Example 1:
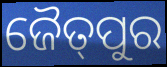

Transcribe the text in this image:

ଜୈତ୍‌ପୁର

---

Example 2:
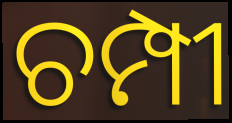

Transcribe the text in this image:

ଚମ୍ପୀ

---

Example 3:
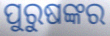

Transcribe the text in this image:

ପୁରୁଷଙ୍କର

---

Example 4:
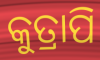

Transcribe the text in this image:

କୁତ୍ରାପି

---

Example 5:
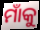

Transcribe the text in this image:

ମାଁକୁ